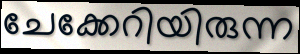
ചേക്കേറിയിരുന്ന